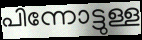
പിന്നോട്ടുള്ള